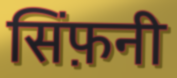
सिंफ़नी